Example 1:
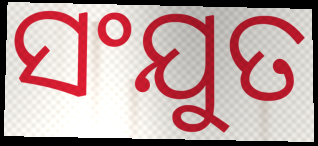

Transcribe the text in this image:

ସଂଯୁତ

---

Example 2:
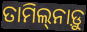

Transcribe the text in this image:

ତାମିଲ୍‌ନାଡ଼ୁ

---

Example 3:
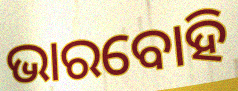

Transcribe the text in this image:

ଭାରବୋହି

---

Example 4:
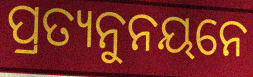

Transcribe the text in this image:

ପ୍ରତ୍ୟନୁନୟନେ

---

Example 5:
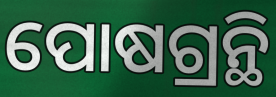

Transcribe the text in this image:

ପୋଷଗ୍ରନ୍ଥି